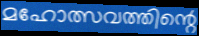
മഹോത്സവത്തിന്റെ